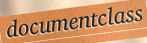
documentclass